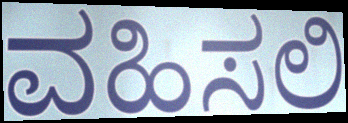
ವಹಿಸಲಿ